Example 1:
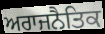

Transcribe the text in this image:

ਅਰਾਜਨੈਤਿਕ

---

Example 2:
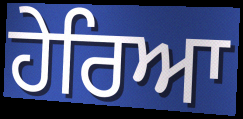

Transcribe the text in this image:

ਹੇਰਿਆ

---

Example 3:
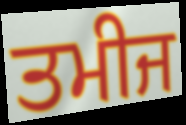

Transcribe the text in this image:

ਤਮੀਜ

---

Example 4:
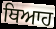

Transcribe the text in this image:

ਥਿਆਹ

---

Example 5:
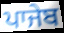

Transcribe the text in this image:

ਪਾਜੇਬ